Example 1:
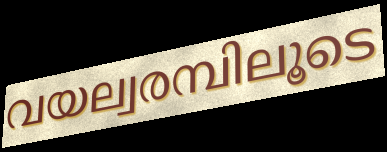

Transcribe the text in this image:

വയല്വരമ്പിലൂടെ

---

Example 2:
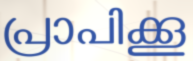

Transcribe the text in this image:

പ്രാപിക്കൂ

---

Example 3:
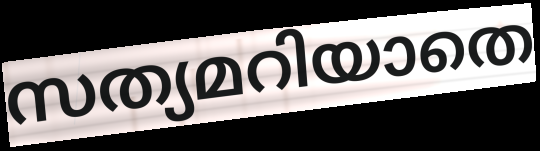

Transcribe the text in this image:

സത്യമറിയാതെ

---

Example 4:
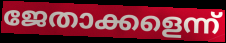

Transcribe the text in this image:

ജേതാക്കളെന്ന്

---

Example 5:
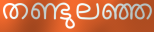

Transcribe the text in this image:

തണ്ടുലഞ്ഞ